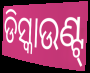
ଡିସ୍କାଉଣ୍ଟ୍